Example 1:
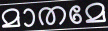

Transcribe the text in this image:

മാതമേ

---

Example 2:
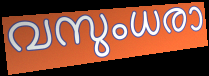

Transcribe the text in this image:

വസുംധരാ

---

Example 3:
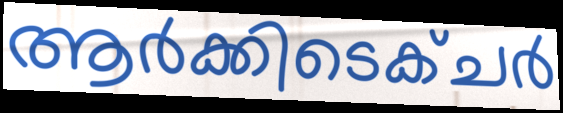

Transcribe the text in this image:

ആർക്കിടെക്ചർ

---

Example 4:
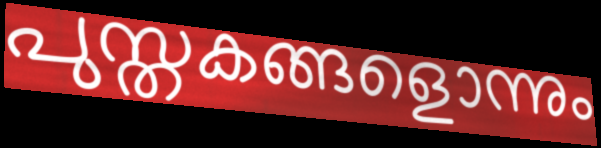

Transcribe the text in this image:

പുസ്തകങ്ങളൊന്നും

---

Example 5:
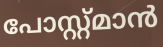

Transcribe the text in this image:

പോസ്റ്റ്മാൻ